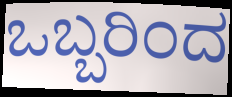
ಒಬ್ಬರಿಂದ